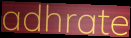
adhrate